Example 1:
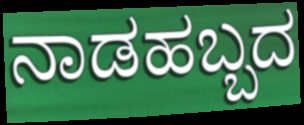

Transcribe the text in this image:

ನಾಡಹಬ್ಬದ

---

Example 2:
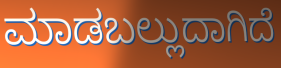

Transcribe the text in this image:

ಮಾಡಬಲ್ಲುದಾಗಿದೆ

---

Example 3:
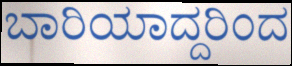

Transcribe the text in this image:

ಬಾರಿಯಾದ್ದರಿಂದ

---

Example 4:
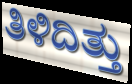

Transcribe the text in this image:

ತಿಳಿದಿತ್ತು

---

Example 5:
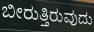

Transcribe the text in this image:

ಬೀರುತ್ತಿರುವುದು